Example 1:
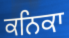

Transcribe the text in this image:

ਕਨਿਕਾ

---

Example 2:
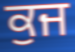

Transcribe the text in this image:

ਕੁਜ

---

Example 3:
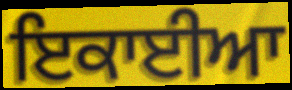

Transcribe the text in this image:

ਇਕਾਈਆ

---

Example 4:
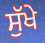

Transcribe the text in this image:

ਸੁੱਖੇ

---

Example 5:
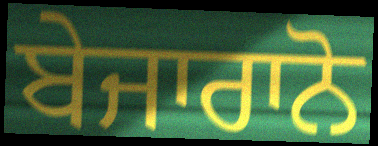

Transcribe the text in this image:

ਬੇਜਾਰਾਨੋ